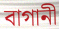
বাগানী